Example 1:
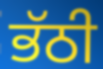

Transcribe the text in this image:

ਭੱਠੀ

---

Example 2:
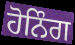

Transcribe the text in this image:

ਹੋਨਿੰਗ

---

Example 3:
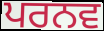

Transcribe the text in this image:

ਪਰਨਵ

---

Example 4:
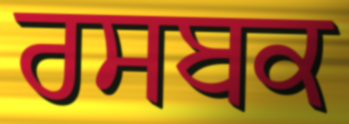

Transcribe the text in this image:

ਰਸਬਕ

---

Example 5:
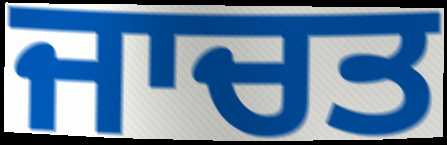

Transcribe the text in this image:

ਜਾਚਤ